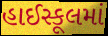
હાઈસ્કૂલમાં